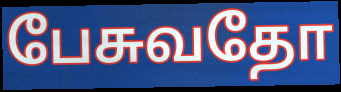
பேசுவதோ